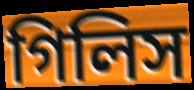
গিলিস